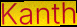
Kanth